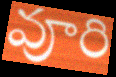
వూరి